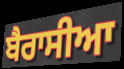
ਬੈਰਾਸੀਆ